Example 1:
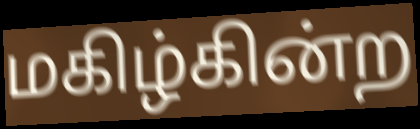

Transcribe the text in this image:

மகிழ்கின்ற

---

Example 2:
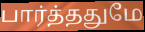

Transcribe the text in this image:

பார்த்ததுமே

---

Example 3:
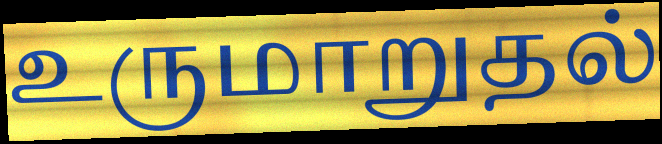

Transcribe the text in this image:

உருமாறுதல்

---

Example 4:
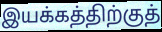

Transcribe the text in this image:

இயக்கத்திற்குத்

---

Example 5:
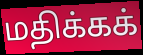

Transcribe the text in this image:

மதிக்கக்